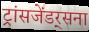
ट्रांसजेंडर्सना